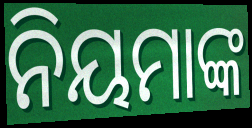
ନିୟମାଙ୍କ